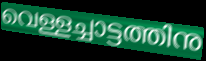
വെള്ളച്ചാട്ടത്തിനു